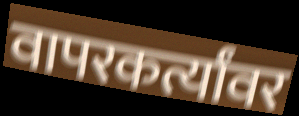
वापरकर्त्यांवर